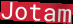
Jotam